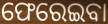
ଫେରେଇବା